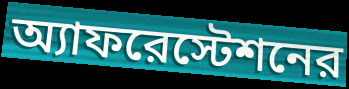
অ্যাফরেস্টেশনের